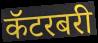
कॅटरबरी